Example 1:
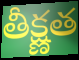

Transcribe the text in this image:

తీక్ష్ణత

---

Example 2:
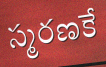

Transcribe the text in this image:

స్మరణకే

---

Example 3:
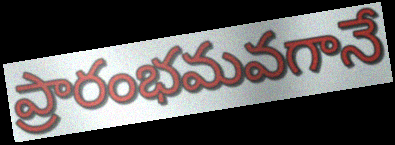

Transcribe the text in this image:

ప్రారంభమవగానే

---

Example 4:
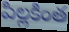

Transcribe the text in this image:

పిల్లకింత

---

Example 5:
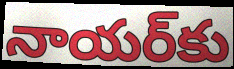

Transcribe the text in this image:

నాయర్‌కు